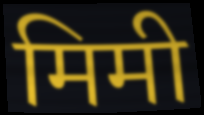
मिमी